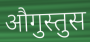
औगुस्तुस